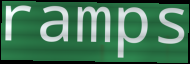
ramps